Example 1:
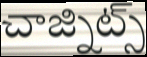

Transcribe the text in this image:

చాజ్నిట్స్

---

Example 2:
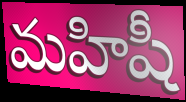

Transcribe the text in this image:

మహిషీ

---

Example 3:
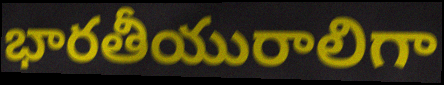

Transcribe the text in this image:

భారతీయురాలిగా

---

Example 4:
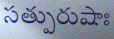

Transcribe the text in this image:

సత్పురుషాః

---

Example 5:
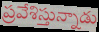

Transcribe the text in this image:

ప్రవేశిస్తున్నాడు